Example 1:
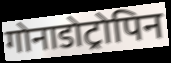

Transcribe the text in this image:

गोनाडोट्रोपिन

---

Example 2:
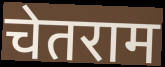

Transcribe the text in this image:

चेतराम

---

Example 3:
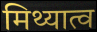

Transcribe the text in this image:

मिथ्‍यात्‍व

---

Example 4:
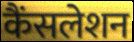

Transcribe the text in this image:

कैंसलेशन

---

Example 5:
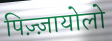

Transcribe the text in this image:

पिज़्ज़ायोलो